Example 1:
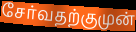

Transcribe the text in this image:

சேர்வதற்குமுன்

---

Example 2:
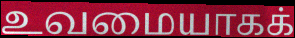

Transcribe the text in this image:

உவமையாகக்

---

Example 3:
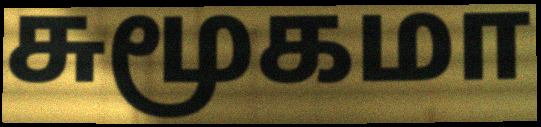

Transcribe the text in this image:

சுமூகமா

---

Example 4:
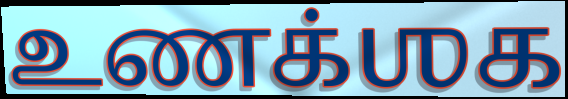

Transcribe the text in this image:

உணக்ஶக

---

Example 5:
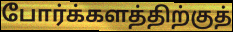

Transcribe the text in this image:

போர்க்களத்திற்குத்